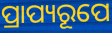
ପ୍ରାପ୍ୟରୂପେ